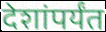
देशांपर्यंत